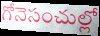
గోనెసంచుల్లో